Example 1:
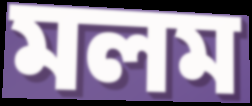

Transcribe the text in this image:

মলম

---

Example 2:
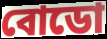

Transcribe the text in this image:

বোডো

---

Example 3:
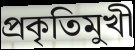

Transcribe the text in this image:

প্রকৃতিমুখী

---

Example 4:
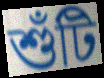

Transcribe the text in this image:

শুঁটি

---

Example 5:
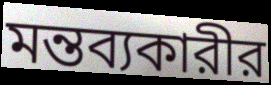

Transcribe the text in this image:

মন্তব্যকারীর